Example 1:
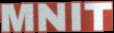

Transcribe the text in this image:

MNIT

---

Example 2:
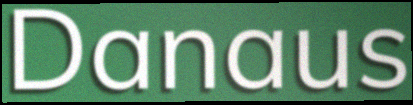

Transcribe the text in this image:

Danaus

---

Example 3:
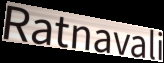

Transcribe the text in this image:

Ratnavali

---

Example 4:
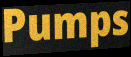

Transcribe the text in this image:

Pumps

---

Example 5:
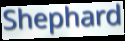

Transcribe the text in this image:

Shephard